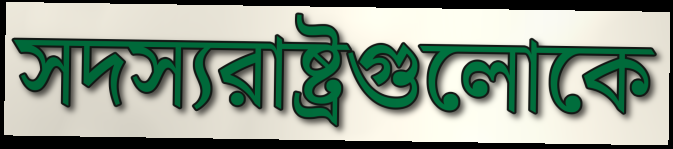
সদস্যরাষ্ট্রগুলোকে